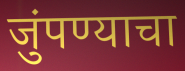
जुंपण्याचा